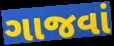
ગાજવાં